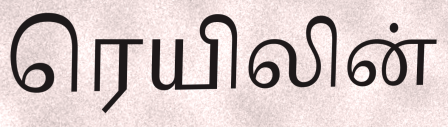
ரெயிலின்